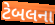
ટેબલના